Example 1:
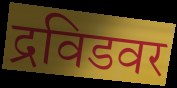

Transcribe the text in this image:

द्रविडवर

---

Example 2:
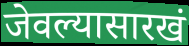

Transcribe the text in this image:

जेवल्यासारखं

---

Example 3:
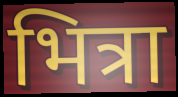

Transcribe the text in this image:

भित्रा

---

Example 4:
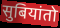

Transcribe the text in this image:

सुबियांतो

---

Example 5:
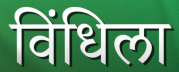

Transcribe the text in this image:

विंधिला